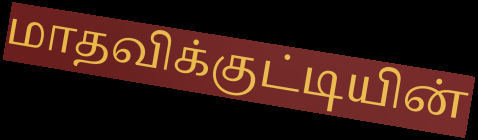
மாதவிக்குட்டியின்